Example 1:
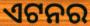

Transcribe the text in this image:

ଏଟନର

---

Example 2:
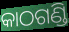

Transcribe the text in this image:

କାଠଗଣ୍ଡି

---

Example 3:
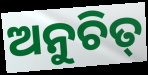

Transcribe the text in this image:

ଅନୁଚିତ୍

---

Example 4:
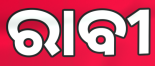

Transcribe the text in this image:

ରାବୀ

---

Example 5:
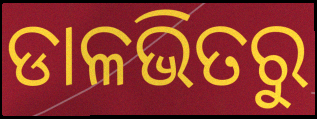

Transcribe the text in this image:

ଡାଳଭିତରୁ